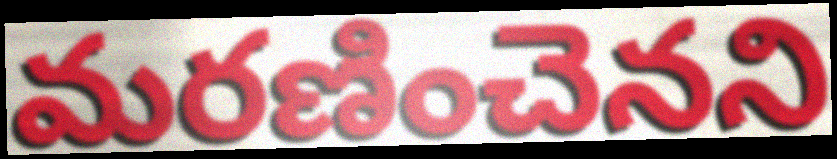
మరణించెనని